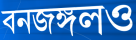
বনজঙ্গলও